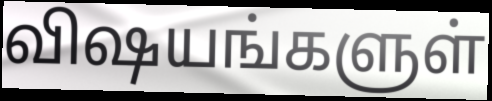
விஷயங்களுள்